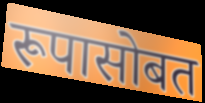
रूपासोबत